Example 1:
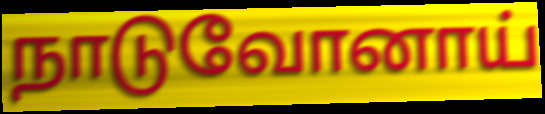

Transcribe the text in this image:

நாடுவோனாய்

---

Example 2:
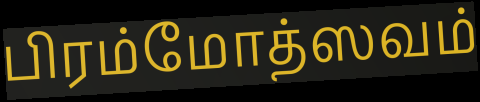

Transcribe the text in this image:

பிரம்மோத்ஸவம்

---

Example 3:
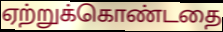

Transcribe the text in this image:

ஏற்றுக்கொண்டதை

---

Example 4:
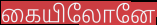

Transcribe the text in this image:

கையிலோனே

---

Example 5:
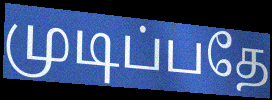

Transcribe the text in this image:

முடிப்பதே